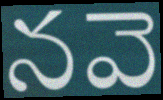
నవె